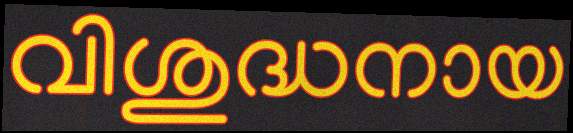
വിശുദ്ധനായ